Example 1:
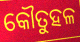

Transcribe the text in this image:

କୌତୁହଳ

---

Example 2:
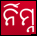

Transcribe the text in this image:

ର୍ନିମ୍ନ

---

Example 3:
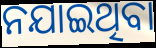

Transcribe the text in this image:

ନଯାଇଥିବା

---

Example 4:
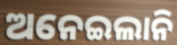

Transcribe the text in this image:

ଅନେଇଲାନି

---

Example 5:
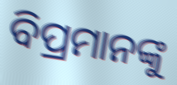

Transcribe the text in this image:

ବିପ୍ରମାନଙ୍କୁ